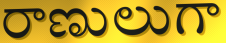
రాణులుగా